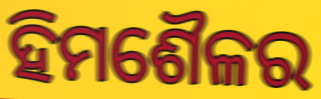
ହିମଶୈଳର